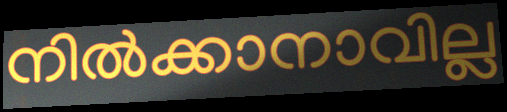
നിൽക്കാനാവില്ല